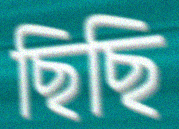
ছিছি